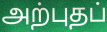
அற்புதப்